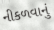
નીકળવાનું